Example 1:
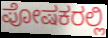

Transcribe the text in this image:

ಪೋಷಕರಲ್ಲಿ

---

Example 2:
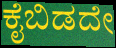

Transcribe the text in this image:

ಕೈಬಿಡದೇ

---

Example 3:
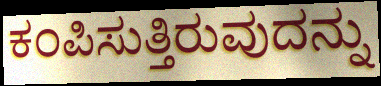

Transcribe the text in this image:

ಕಂಪಿಸುತ್ತಿರುವುದನ್ನು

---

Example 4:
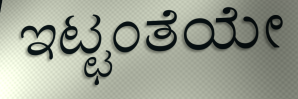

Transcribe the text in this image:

ಇಟ್ಟಂತೆಯೇ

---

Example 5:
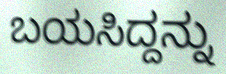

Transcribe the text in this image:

ಬಯಸಿದ್ದನ್ನು